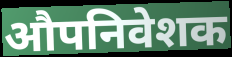
औपनिवेशक